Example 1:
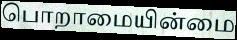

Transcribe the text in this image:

பொறாமையின்மை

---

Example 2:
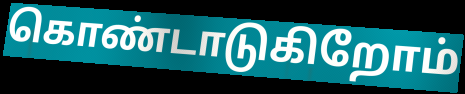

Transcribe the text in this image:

கொண்டாடுகிறோம்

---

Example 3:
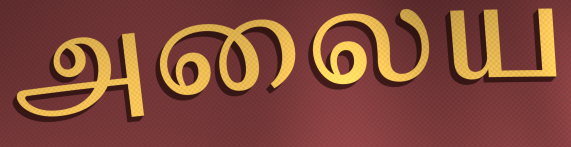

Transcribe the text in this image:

அலைய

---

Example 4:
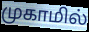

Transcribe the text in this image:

முகாமில்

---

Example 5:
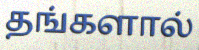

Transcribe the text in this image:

தங்களால்